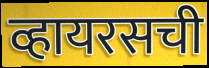
व्हायरसची